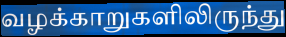
வழக்காறுகளிலிருந்து